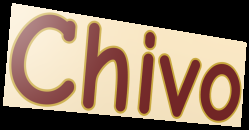
Chivo